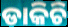
ଡାକିଚି